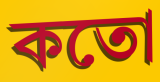
কতো